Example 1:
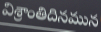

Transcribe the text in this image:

విశ్రాంతిదినమున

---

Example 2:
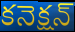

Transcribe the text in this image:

కనెక్షన్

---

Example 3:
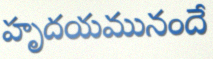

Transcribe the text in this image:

హృదయమునందే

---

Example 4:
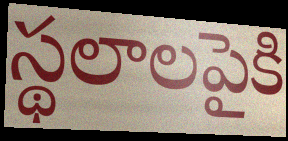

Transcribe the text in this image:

స్థలాలపైకి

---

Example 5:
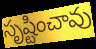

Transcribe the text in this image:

సృష్టించావు